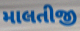
માલતીજી